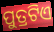
ପୁତ୍ରଟିଏ